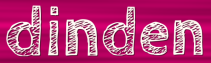
dinden